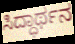
ಸಿದ್ಧಾರ್ಥನ